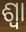
ଶ୍ୱା